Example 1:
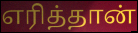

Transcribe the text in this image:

எரித்தான்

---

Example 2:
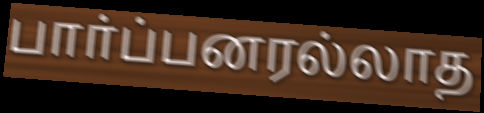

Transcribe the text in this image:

பார்ப்பனரல்லாத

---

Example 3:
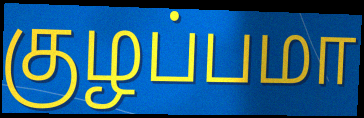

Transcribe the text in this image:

குழப்பமா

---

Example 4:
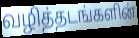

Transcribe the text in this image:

வழித்தடங்களின்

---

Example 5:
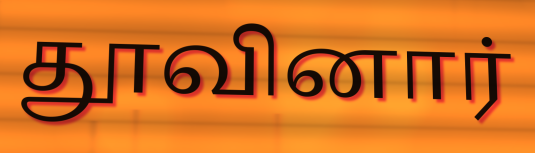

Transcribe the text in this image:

தூவினார்